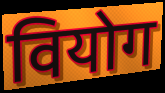
वियोग